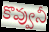
కొవ్వునీ